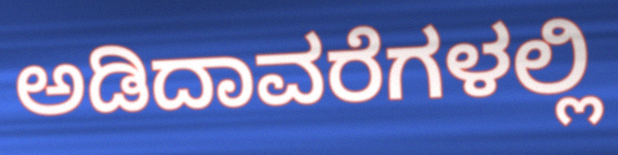
ಅಡಿದಾವರೆಗಳಲ್ಲಿ